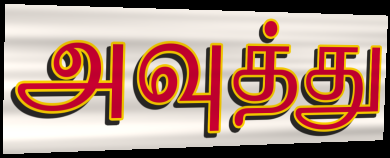
அவுத்து